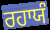
ਰਹਾਯੰ